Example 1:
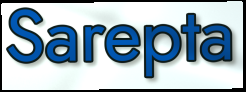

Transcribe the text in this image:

Sarepta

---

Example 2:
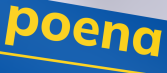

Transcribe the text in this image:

poena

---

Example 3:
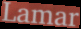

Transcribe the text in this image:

Lamar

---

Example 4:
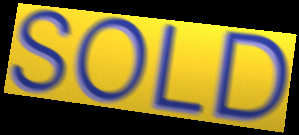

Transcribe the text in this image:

SOLD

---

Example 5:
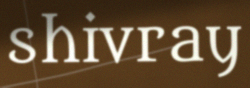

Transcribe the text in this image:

shivray